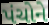
પંચોને